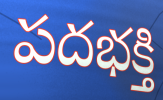
పదభక్తి